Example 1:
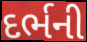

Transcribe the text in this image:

દર્ભની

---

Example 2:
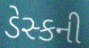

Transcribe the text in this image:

ડેસ્કની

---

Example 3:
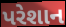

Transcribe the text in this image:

પરેશાન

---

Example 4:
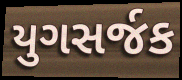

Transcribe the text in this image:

યુગસર્જક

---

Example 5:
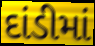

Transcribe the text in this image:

દાંડીમાં